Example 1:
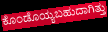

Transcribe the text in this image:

ಕೊಂಡೊಯ್ಯಬಹುದಾಗಿತ್ತು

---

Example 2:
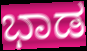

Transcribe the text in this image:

ಭಾಡ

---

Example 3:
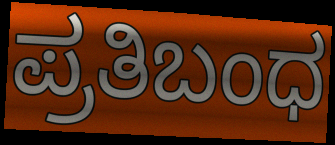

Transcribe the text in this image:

ಪ್ರತಿಬಂಧ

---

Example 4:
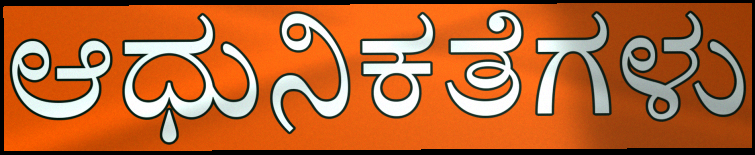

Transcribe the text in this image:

ಆಧುನಿಕತೆಗಳು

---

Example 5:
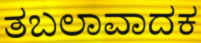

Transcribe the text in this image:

ತಬಲಾವಾದಕ